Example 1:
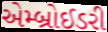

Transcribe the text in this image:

એમ્બ્રોઈડરી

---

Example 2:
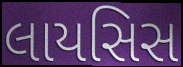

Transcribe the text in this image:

લાયસિસ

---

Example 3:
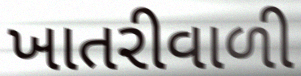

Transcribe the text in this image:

ખાતરીવાળી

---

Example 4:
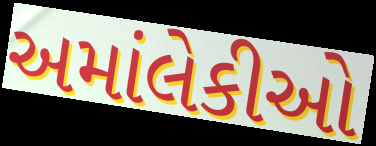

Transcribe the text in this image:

અમાંલેકીઓ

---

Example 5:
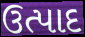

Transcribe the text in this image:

ઉત્પાદ